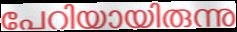
പേറിയായിരുന്നു